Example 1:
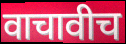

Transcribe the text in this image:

वाचावीच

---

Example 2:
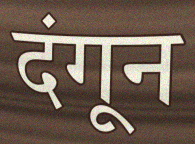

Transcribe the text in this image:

दंगून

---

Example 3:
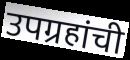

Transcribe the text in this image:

उपग्रहांची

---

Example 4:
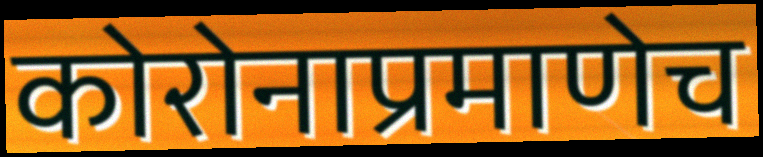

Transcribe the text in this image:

कोरोनाप्रमाणेच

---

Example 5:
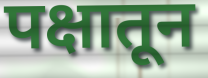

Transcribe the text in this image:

पक्षातून